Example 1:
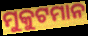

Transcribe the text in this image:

ମୁକୁଟମାନ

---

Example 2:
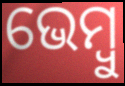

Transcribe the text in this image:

ଭେମ୍ବୁ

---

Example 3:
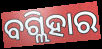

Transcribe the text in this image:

ବଗ୍ଲିହାର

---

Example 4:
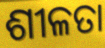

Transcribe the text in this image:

ଶୀଳତା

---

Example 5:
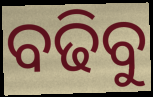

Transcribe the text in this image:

ବଢିବୁ